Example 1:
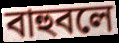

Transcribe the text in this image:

বাহুবলে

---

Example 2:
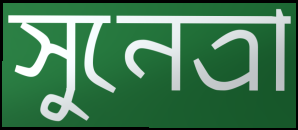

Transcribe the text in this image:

সুনেত্রা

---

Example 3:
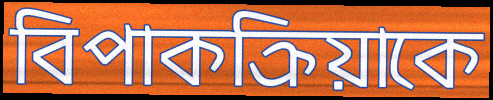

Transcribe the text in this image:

বিপাকক্রিয়াকে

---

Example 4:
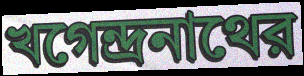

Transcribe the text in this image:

খগেন্দ্রনাথের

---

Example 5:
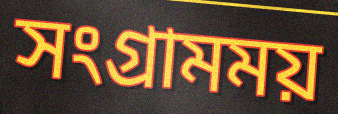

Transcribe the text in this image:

সংগ্রামময়